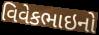
વિવેકભાઇનો